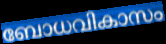
ബോധവികാസം